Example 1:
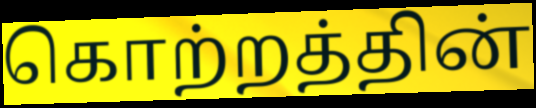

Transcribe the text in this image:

கொற்றத்தின்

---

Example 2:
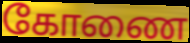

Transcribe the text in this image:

கோணை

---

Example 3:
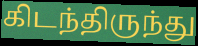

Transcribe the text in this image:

கிடந்திருந்து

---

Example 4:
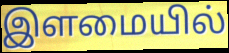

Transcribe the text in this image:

இளமையில்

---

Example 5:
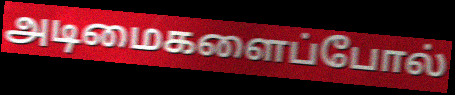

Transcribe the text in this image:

அடிமைகளைப்போல்